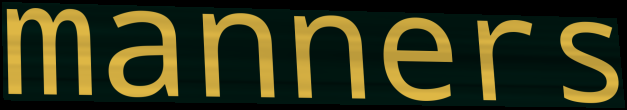
manners